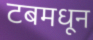
टबमधून